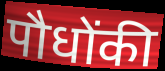
पौधोंकी